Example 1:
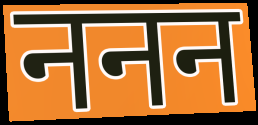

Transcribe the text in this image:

ननन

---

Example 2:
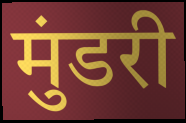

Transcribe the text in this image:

मुंडरी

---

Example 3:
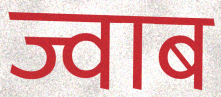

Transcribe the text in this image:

ज्वाब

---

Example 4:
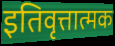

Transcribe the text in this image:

इतिवृत्तात्मक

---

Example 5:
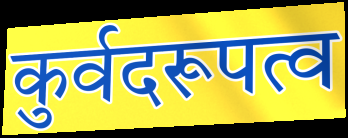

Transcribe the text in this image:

कुर्वदरूपत्व